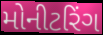
મોનીટરિંગ